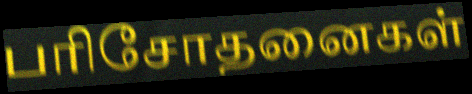
பரிசோதனைகள்